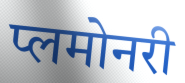
प्लमोनरी